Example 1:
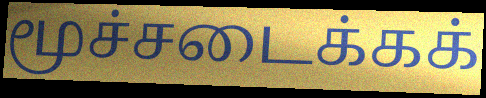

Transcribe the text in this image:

மூச்சடைக்கக்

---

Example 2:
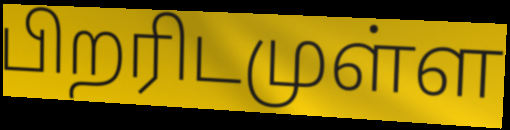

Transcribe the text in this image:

பிறரிடமுள்ள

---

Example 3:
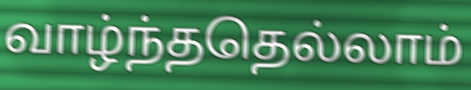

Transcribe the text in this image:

வாழ்ந்ததெல்லாம்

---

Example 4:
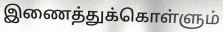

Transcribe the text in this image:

இணைத்துக்கொள்ளும்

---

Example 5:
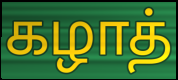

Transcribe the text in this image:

கழாத்